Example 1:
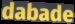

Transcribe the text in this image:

dabade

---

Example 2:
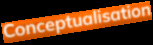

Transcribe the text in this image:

Conceptualisation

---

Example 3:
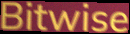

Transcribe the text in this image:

Bitwise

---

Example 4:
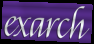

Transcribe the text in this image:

exarch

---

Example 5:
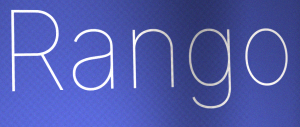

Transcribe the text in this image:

Rango